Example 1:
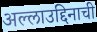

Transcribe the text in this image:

अल्लाउद्दिनाची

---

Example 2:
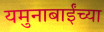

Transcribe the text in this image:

यमुनाबाईंच्या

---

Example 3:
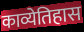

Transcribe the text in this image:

काव्येतिहास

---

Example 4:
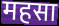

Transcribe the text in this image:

महसा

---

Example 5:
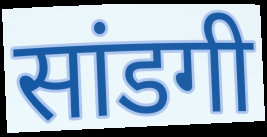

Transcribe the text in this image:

सांडगी